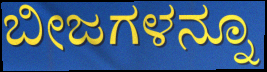
ಬೀಜಗಳನ್ನೂ